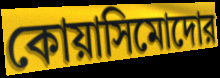
কোয়াসিমোদোর